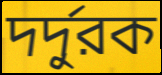
দর্দুরক